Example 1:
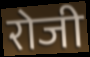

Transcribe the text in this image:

रोजी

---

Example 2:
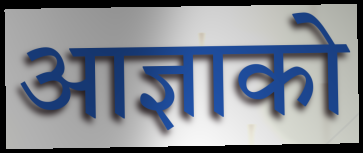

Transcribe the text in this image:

आज्ञाको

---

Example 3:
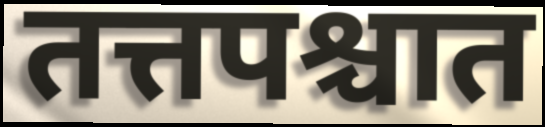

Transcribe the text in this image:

तत्तपश्चात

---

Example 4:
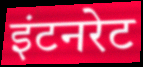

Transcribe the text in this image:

इंटनरेट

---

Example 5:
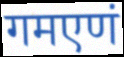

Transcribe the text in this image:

गमएणं